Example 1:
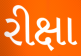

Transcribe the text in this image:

રીક્ષા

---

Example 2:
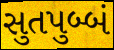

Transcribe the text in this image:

સુતપુબ્બં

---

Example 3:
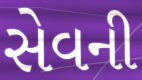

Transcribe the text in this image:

સેવની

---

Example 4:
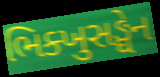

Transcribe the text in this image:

ભિક્ખુસઙ્ઘેન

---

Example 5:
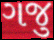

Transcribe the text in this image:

ગજુ